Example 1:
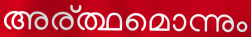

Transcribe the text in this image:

അര്ത്ഥമൊന്നും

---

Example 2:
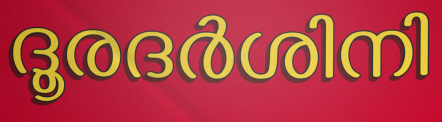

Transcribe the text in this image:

ദൂരദർശിനി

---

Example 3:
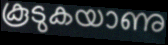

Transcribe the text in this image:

കൂടുകയാണു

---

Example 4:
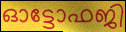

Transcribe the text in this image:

ഓട്ടോഫജി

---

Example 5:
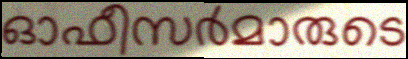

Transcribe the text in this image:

ഓഫീസർമാരുടെ